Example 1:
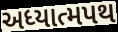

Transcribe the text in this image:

અધ્યાત્મપથ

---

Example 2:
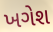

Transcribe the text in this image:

ખગેશ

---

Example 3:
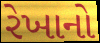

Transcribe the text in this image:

રેખાનો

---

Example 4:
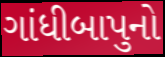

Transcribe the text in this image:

ગાંધીબાપુનો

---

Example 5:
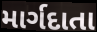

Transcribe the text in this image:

માર્ગદાતા